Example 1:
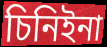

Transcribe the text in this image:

চিনিইনা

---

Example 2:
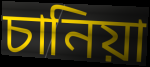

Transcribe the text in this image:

চানিয়া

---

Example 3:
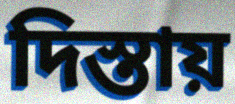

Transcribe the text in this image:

দিস্তায়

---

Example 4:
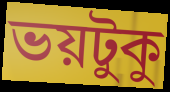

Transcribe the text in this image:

ভয়টুকু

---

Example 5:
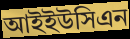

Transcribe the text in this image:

আইইউসিএন